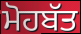
ਮੋਹਬੱਤ